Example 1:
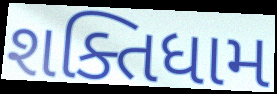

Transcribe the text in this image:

શક્તિધામ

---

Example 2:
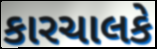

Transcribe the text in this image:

કારચાલકે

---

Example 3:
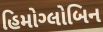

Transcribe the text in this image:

હિમોગ્લોબિન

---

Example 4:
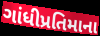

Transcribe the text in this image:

ગાંધીપ્રતિમાના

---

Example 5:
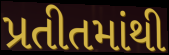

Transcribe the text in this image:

પ્રતીતમાંથી